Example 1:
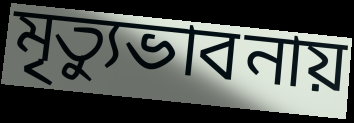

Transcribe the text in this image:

মৃত্যুভাবনায়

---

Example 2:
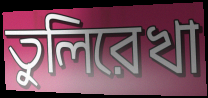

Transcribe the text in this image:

তুলিরেখা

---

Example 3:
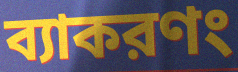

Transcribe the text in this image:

ব্যাকরণং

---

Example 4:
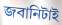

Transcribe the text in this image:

জবানিটাই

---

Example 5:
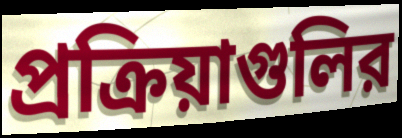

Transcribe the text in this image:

প্রক্রিয়াগুলির